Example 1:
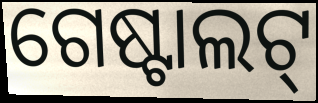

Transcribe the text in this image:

ଗେଷ୍ଟାଲଟ୍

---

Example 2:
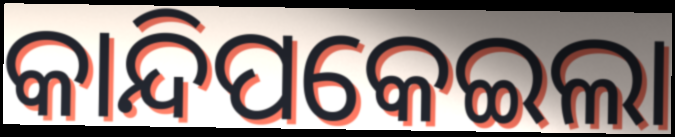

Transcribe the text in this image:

କାନ୍ଦିପକେଇଲା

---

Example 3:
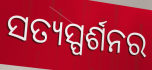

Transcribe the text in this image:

ସତ୍ୟସ୍ପର୍ଶନର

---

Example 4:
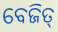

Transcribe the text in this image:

ବେଜିତ୍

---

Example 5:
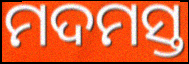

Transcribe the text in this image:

ମଦମସ୍ତ